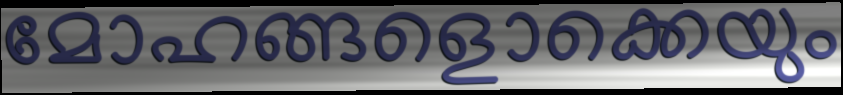
മോഹങ്ങളൊക്കെയും